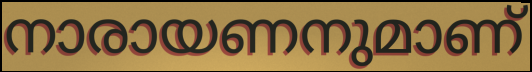
നാരായണനുമാണ്